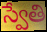
స్వేతి